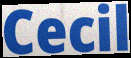
Cecil